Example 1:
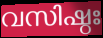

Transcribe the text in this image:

വസിഷ്ഠഃ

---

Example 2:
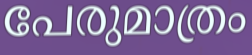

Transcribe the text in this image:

പേരുമാത്രം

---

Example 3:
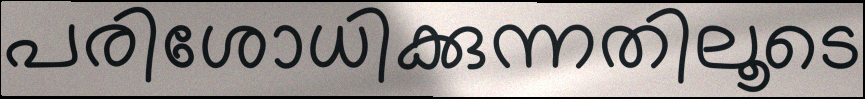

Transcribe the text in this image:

പരിശോധിക്കുന്നതിലൂടെ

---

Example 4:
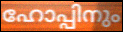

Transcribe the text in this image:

ഹോപ്പിനും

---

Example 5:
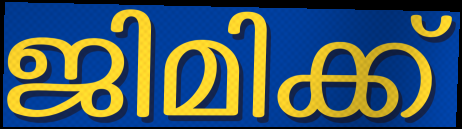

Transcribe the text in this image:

ജിമിക്ക്